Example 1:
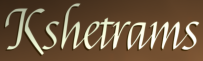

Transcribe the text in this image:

Kshetrams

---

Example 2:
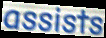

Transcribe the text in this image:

assists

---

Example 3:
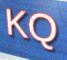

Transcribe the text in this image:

KQ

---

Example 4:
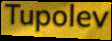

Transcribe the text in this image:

Tupolev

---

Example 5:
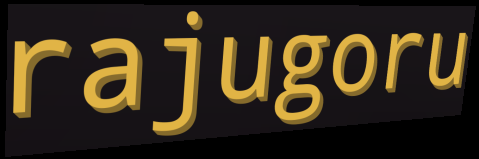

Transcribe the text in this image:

rajugoru